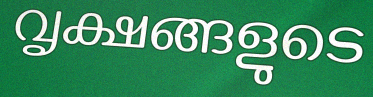
വൃക്ഷങ്ങളുടെ